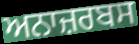
ਅਨਾਜ਼ਰਬਸ